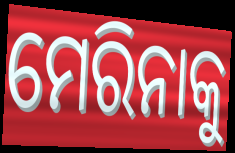
ମେରିନାକୁ